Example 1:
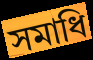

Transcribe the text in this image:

সমাধি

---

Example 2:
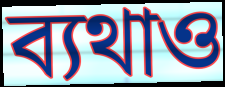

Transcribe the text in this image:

ব্যথাও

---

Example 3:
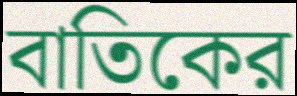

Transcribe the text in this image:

বাতিকের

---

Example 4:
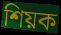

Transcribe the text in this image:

শিয়ক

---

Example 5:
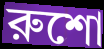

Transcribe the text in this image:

রুশো